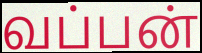
வப்பன்